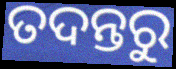
ତଦନ୍ତରୁ